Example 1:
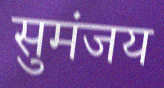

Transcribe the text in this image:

सुमंजय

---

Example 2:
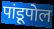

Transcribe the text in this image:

पांडूपोल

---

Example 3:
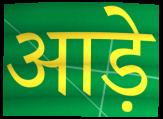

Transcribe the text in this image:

आड़े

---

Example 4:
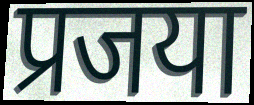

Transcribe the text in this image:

प्रजया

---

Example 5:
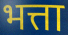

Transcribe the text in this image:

भत्ता